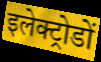
इलेक्ट्रोडों